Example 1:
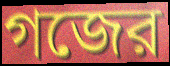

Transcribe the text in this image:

গজের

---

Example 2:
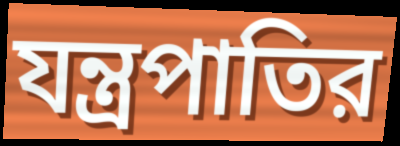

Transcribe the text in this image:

যন্ত্রপাতির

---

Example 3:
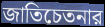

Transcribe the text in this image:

জাতিচেতনার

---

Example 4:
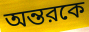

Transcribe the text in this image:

অন্তরকে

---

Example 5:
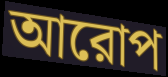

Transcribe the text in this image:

আরোপ